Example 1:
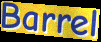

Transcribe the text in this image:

Barrel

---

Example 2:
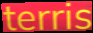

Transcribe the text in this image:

terris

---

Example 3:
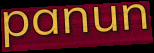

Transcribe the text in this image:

panun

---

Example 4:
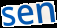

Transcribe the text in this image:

sen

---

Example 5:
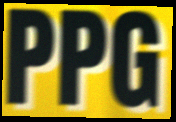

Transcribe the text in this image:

PPG